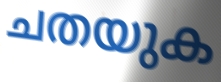
ചതയുക